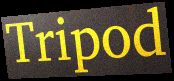
Tripod